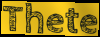
Thete